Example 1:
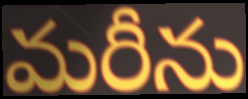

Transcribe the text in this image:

మరీను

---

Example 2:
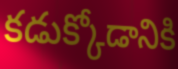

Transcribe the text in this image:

కడుక్కోడానికి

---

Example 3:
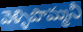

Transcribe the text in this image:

వెళ్ళిపొమ్మనీ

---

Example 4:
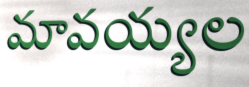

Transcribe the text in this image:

మావయ్యల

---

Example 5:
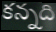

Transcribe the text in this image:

కన్నది